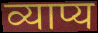
व्याप्य